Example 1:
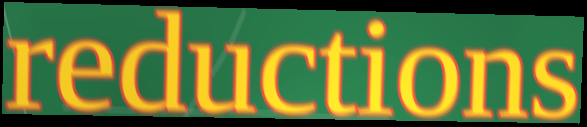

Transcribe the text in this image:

reductions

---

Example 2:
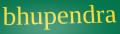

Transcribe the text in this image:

bhupendra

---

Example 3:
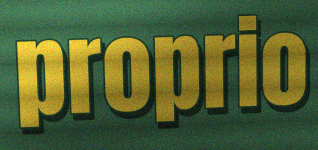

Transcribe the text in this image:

proprio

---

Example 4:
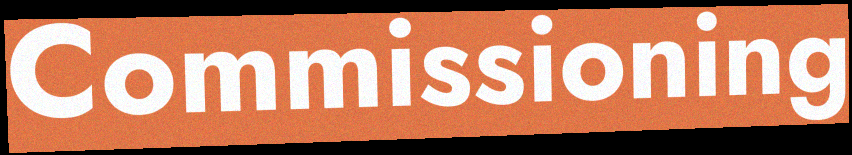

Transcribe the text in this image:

Commissioning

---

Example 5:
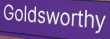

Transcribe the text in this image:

Goldsworthy